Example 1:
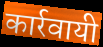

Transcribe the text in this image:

कार्रवायी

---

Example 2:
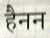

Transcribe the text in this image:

हैनन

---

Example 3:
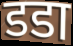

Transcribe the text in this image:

डडा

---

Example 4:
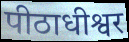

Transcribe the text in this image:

पीठाधीश्वर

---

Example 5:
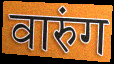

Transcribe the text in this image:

वारुंग